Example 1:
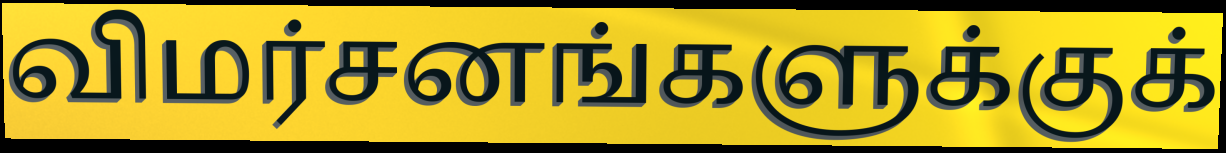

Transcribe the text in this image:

விமர்சனங்களுக்குக்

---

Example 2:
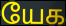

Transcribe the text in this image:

யேக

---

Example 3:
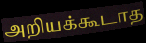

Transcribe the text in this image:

அறியக்கூடாத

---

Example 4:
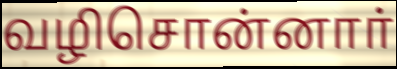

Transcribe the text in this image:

வழிசொன்னார்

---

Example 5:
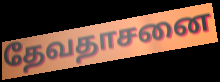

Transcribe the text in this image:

தேவதாசனை